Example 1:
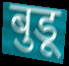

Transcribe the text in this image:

बुडू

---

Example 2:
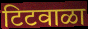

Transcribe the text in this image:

टिटवाळा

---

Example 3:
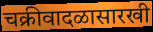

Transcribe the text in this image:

चक्रीवादळासारखी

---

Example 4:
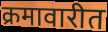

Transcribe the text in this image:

क्रमावारीत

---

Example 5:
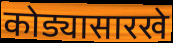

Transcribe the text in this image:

कोड्यासारखे